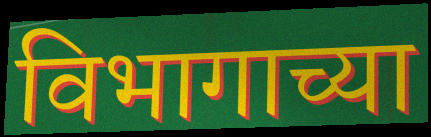
विभागाच्या